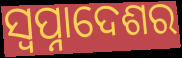
ସ୍ଵପ୍ନାଦେଶର